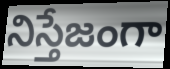
నిస్తేజంగా